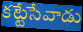
కట్టేసేవాడు